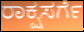
ರಾಕ್ಷಸರ್ಗೆ